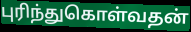
புரிந்துகொள்வதன்